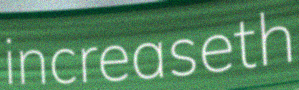
increaseth